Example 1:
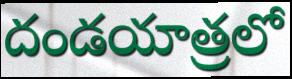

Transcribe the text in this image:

దండయాత్రలో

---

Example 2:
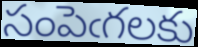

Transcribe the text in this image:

సంపెఁగలకు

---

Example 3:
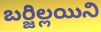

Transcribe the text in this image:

బర్జిల్లయిని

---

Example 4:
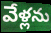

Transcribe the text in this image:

వేళ్లను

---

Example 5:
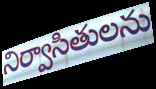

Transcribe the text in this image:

నిర్వాసితులను